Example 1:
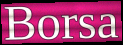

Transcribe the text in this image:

Borsa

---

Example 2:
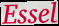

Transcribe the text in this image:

Essel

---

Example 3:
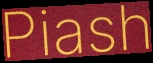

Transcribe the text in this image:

Piash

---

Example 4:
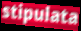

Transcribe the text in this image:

stipulata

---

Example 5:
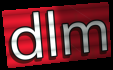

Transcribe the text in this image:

dlm